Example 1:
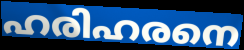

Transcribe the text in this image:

ഹരിഹരനെ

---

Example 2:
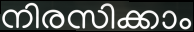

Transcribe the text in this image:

നിരസിക്കാം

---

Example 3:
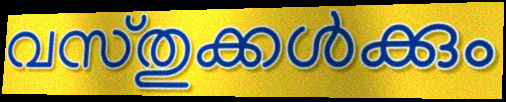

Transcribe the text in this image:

വസ്തുക്കൾക്കും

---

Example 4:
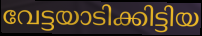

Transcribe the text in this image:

വേട്ടയാടിക്കിട്ടിയ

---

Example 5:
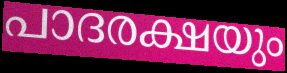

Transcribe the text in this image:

പാദരക്ഷയും